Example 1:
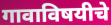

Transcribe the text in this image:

गावाविषयीचे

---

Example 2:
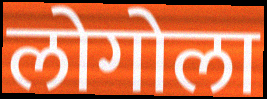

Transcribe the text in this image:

लोगोला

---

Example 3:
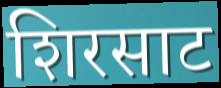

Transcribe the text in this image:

शिरसाट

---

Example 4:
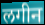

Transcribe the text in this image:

लगीन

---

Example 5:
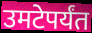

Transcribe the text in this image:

उमटेपर्यंत